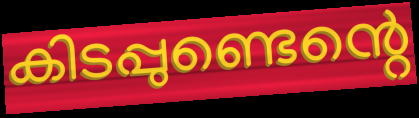
കിടപ്പുണ്ടെന്റെ